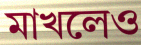
মাখলেও